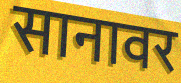
सानावर